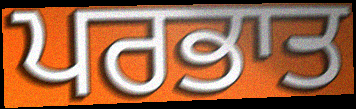
ਪਰਭਾਤ